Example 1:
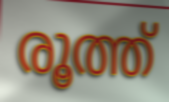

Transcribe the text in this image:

രൂത്ത്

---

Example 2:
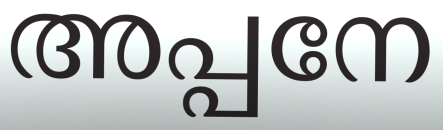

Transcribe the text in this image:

അപ്പനേ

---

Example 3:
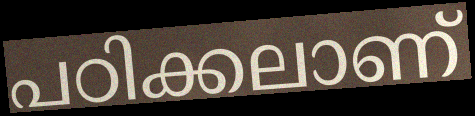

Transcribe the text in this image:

പഠിക്കലാണ്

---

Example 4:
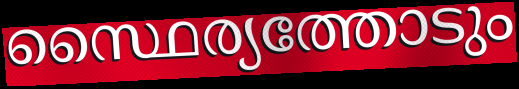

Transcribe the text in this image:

സ്ഥൈര്യത്തോടും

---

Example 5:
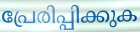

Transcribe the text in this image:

പ്രേരിപ്പിക്കുക